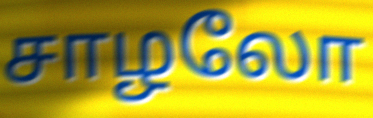
சாழலோ